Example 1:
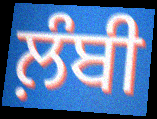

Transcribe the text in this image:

ਲ਼ੰਬੀ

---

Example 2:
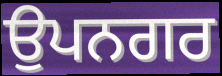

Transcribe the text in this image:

ਉਪਨਗਰ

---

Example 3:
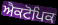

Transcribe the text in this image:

ਐਕਟੋਪਿਕ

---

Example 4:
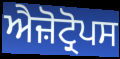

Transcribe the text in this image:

ਐਜ਼ੋਟ੍ਰੋਪਸ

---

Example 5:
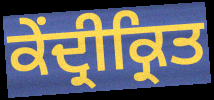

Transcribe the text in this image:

ਕੇਂਦ੍ਰੀਕ੍ਰਿਤ